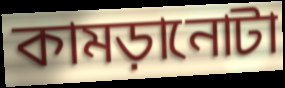
কামড়ানোটা